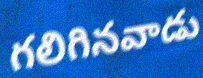
గలిగినవాడు